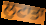
ਲੁਟਾਤਾ